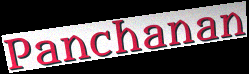
Panchanan